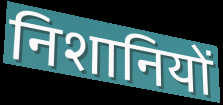
निशानियों